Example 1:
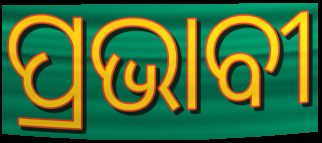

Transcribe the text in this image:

ପ୍ରଭାବୀ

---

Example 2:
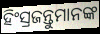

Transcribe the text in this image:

ହିଂସ୍ରଜନ୍ତୁମାନଙ୍କ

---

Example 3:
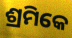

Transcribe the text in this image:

ଶ୍ରମିକେ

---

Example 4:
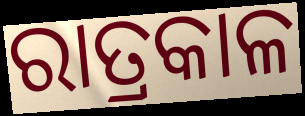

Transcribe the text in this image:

ରାତ୍ରକାଳ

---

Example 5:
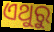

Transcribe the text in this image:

ଏଥୁରୁ